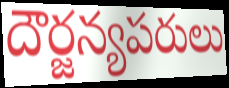
దౌర్జన్యపరులు